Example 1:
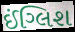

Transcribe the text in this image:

ઈંગ્લિશ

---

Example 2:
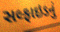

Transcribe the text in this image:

સલ્ફાઇડનું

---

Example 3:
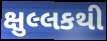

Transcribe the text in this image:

ક્ષુલ્લકથી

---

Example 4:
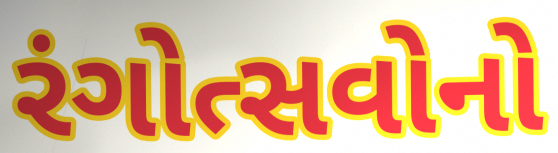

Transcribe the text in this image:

રંગોત્સવોનો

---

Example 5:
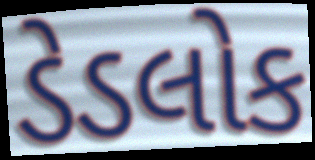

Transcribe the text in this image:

ડેડલોક